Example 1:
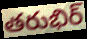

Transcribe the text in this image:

తరుభిర్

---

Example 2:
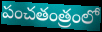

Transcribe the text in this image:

పంచతంత్రంలో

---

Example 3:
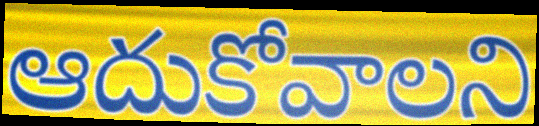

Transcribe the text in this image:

ఆదుకోవాలని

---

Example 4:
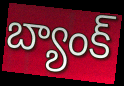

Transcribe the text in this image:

బ్యాంక్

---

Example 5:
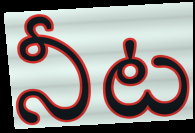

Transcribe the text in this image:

నీట